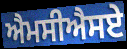
ਐਮਸੀਐਸਏ